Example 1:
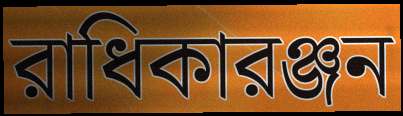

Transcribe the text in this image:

রাধিকারঞ্জন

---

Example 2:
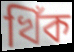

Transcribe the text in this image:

খিঁক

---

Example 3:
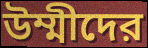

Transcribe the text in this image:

উম্মীদের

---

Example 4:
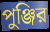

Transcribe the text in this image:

পুঞ্জির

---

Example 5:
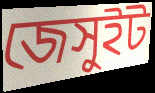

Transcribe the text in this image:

জেসুইট